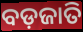
ବଡ଼ଜାତି